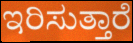
ಇರಿಸುತ್ತಾರೆ